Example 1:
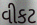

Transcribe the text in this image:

વીકટ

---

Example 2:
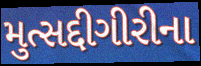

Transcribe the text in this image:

મુત્સદ્દીગીરીના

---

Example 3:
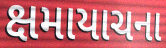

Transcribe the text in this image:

ક્ષમાયાચના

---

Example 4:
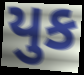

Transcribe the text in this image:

યુક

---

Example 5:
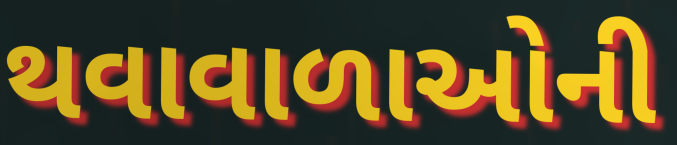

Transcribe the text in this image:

થવાવાળાઓની